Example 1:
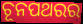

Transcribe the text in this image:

ଚୂନପଥରର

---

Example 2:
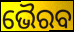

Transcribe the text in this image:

ଭୈରବ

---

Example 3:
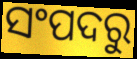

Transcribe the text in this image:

ସଂପଦରୁ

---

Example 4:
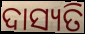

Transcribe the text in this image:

ଦାସ୍ୟତି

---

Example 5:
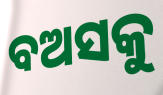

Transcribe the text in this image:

ବଅସକୁ